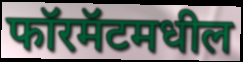
फॉरमॅटमधील